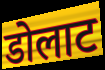
डोलाट